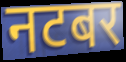
नटबर